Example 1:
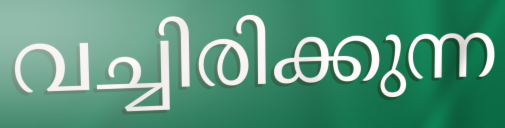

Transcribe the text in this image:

വച്ചിരിക്കുന്ന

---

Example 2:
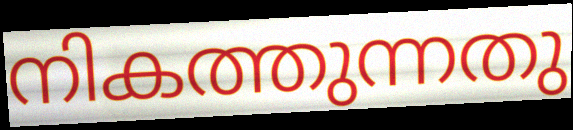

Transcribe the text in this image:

നികത്തുന്നതു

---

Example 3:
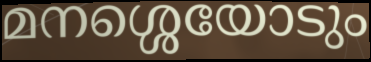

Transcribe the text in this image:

മനശ്ശെയോടും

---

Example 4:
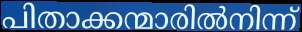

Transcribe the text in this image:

പിതാക്കന്മാരിൽനിന്ന്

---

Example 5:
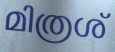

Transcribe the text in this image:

മിത്രശ്